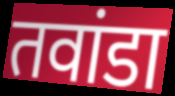
तवांडा